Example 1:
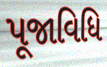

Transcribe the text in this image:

પૂજાવિધિ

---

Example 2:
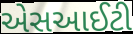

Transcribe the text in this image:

એસઆઈટી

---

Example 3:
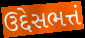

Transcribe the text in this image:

ઉદ્દેસભત્તં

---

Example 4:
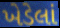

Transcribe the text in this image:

ખેડેલાં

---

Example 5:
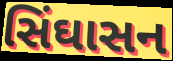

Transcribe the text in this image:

સિંઘાસન